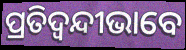
ପ୍ରତିଦ୍ୱନ୍ଦୀଭାବେ